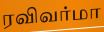
ரவிவர்மா